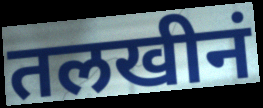
तलखीनं